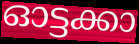
ഓട്ടക്കാ